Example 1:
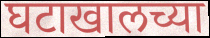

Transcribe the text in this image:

घटाखालच्या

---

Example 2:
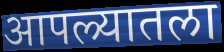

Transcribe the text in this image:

आपल्यातला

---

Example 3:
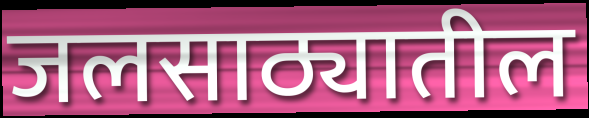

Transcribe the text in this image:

जलसाठ्यातील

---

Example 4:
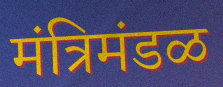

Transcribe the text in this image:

मंत्रिमंडळ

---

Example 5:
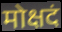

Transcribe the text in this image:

मोक्षदं